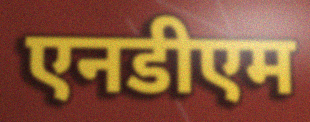
एनडीएम